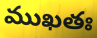
ముఖతః